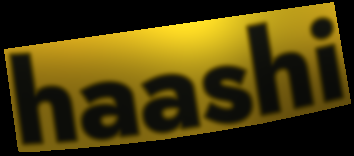
haashi